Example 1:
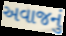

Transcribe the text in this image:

અવાજનું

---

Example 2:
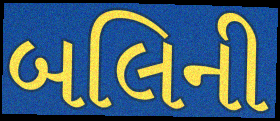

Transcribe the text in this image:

બલિની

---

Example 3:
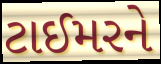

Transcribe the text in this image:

ટાઈમરને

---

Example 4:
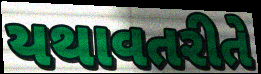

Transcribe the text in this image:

યથાવતરીતે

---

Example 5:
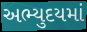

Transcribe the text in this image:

અભ્યુદયમાં